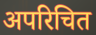
अपरिचित